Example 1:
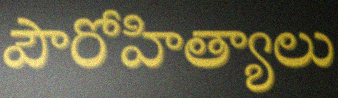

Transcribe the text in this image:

పౌరోహిత్యాలు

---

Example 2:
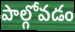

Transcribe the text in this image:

పాల్గోవడం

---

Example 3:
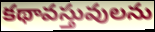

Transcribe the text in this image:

కథావస్తువులను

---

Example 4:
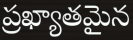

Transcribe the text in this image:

ప్రఖ్యాతమైన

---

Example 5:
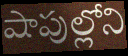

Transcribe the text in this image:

షాపుల్లోని